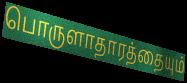
பொருளாதாரத்தையும்